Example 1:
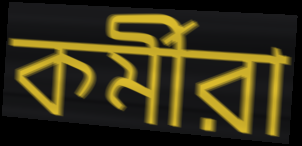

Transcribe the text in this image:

কর্মীরা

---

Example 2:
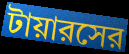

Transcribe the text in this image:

টায়ারসের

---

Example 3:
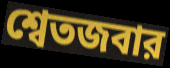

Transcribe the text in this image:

শ্বেতজবার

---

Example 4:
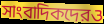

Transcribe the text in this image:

সাংবাদিকদেরও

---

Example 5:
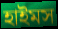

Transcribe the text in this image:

হাইমস